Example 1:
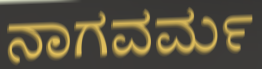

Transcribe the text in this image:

ನಾಗವರ್ಮ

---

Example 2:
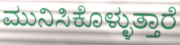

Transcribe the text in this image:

ಮುನಿಸಿಕೊಳ್ಳುತ್ತಾರೆ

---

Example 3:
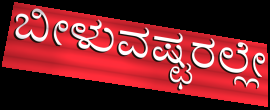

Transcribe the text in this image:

ಬೀಳುವಷ್ಟರಲ್ಲೇ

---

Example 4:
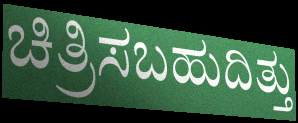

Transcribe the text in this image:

ಚಿತ್ರಿಸಬಹುದಿತ್ತು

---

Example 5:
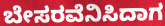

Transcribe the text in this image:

ಬೇಸರವೆನಿಸಿದಾಗ